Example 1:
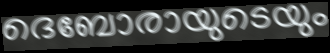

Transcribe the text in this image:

ദെബോരായുടെയും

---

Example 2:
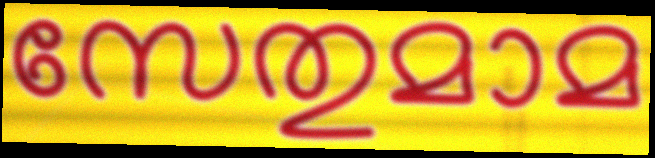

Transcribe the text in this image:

സേതുമാമ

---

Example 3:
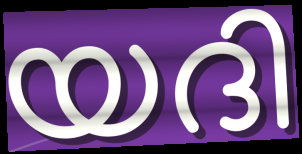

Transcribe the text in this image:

യദി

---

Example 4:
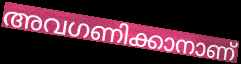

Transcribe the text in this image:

അവഗണിക്കാനാണ്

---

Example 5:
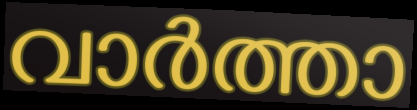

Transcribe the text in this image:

വാർത്താ